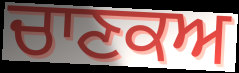
ਚਾਣਕਅ